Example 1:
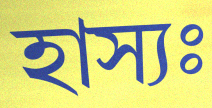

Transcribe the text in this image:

হাস্যঃ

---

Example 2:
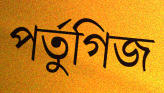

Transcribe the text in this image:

পর্তুগিজ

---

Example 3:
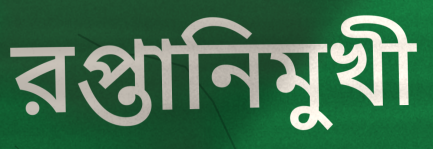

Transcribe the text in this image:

রপ্তানিমুখী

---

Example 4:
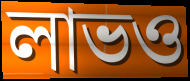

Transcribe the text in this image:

লাভও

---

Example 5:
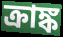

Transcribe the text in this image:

ক্রাঙ্ক